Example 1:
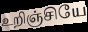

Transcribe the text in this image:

உறிஞ்சியே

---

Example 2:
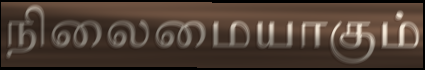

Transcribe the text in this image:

நிலைமையாகும்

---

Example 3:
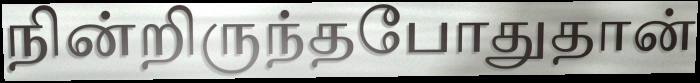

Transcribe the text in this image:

நின்றிருந்தபோதுதான்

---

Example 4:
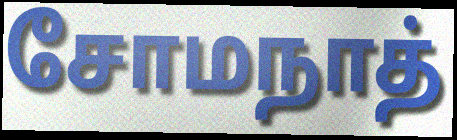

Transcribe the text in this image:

சோமநாத்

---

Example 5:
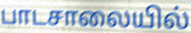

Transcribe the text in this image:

பாடசாலையில்